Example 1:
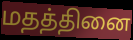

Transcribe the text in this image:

மதத்தினை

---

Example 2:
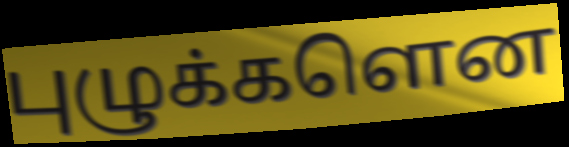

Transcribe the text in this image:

புழுக்களென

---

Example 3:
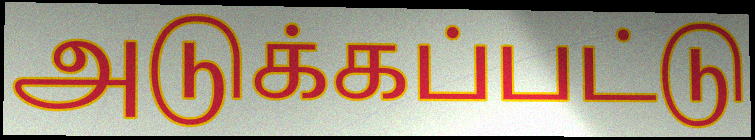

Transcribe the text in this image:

அடுக்கப்பட்டு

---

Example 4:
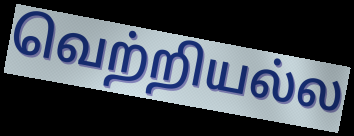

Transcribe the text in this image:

வெற்றியல்ல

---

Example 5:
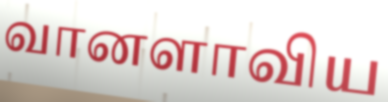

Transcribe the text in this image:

வானளாவிய